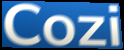
Cozi